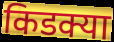
किडक्या